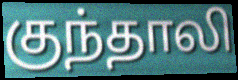
குந்தாலி